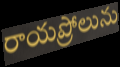
రాయప్రోలును